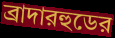
ব্রাদারহুডের